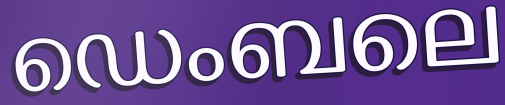
ഡെംബലെ